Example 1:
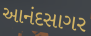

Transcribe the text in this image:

આનંદસાગર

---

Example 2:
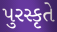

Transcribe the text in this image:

પુરસ્કૃતે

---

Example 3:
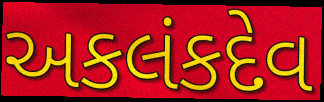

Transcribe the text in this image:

અકલંકદેવ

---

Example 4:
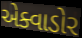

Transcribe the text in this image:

એક્વાડોર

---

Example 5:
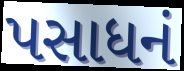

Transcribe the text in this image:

પસાધનં